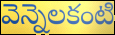
వెన్నెలకంటి